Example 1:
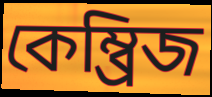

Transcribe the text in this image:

কেম্ব্রিজ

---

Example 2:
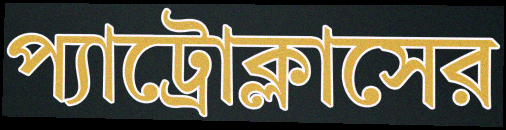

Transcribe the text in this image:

প্যাট্রোক্লাসের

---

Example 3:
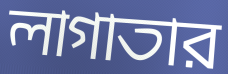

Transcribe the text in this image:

লাগাতার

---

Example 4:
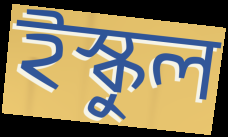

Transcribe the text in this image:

ইস্কুল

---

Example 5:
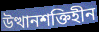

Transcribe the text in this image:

উত্থানশক্তিহীন